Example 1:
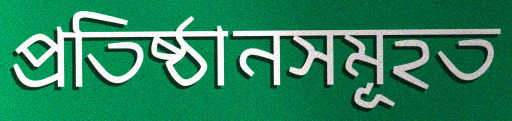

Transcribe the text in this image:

প্ৰতিষ্ঠানসমূহত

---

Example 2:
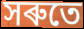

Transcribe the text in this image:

সৰুতে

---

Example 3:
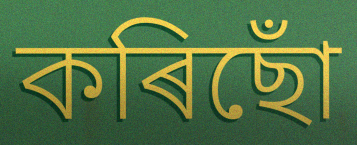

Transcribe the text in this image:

কৰিছোঁ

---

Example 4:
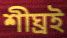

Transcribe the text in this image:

শীঘ্ৰই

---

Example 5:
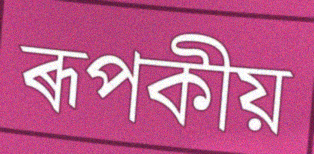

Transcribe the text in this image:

ৰূপকীয়